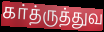
கர்த்ருத்துவ